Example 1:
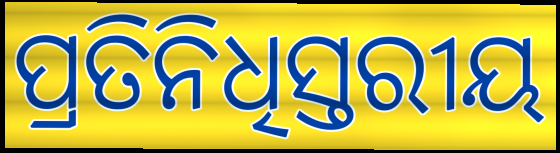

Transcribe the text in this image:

ପ୍ରତିନିଧିସ୍ତରୀୟ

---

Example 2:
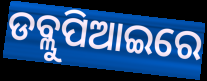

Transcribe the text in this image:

ଡବ୍ଲୁପିଆଇରେ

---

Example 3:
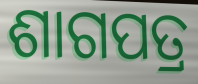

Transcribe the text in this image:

ଶାଗପତ୍ର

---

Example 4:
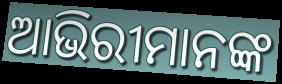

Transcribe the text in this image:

ଆଭିରୀମାନଙ୍କ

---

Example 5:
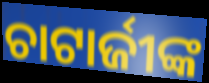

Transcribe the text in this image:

ଚାଟାର୍ଜୀଙ୍କ